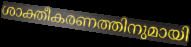
ശാക്തീകരണത്തിനുമായി